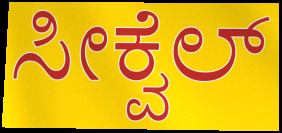
ಸೀಕ್ವೆಲ್